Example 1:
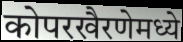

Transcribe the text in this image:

कोपरखैरणेमध्ये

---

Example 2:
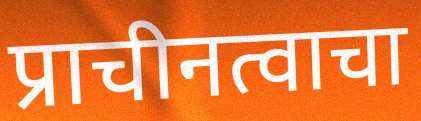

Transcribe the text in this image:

प्राचीनत्वाचा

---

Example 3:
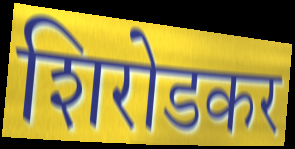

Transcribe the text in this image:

शिरोडकर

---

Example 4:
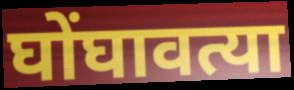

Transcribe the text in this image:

घोंघावत्या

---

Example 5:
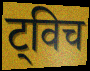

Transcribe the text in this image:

ट्विच